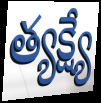
త్యక్ష్యే